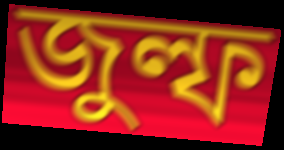
জুল্ফ